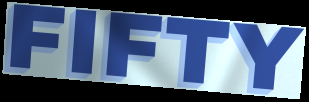
FIFTY